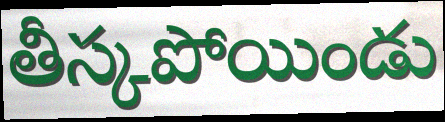
తీస్కపోయిండు